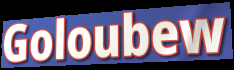
Goloubew